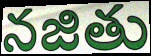
నజితు